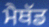
ਮੈਥੱਡ